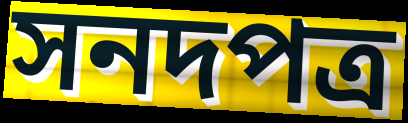
সনদপত্র